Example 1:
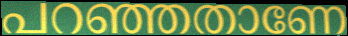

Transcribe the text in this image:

പറഞ്ഞതാണേ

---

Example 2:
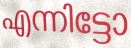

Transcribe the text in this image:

എന്നിട്ടോ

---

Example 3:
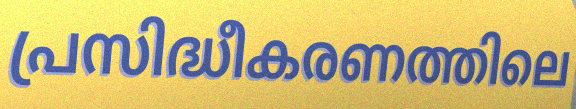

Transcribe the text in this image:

പ്രസിദ്ധീകരണത്തിലെ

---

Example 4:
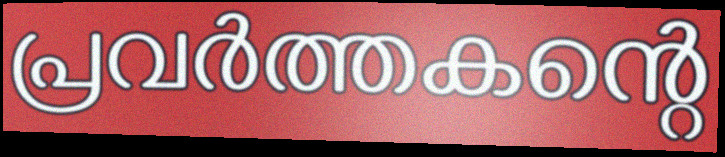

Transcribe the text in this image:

പ്രവർത്തകന്റെ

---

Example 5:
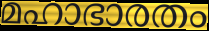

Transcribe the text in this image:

മഹാഭാരതം